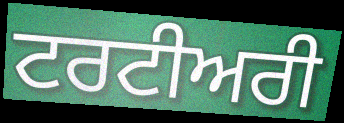
ਟਰਟੀਅਰੀ